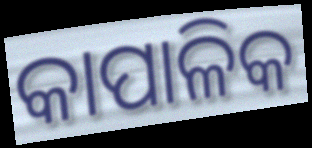
କାପାଳିକ